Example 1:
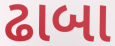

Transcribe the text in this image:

ઢાબા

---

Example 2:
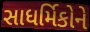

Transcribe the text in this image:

સાધર્મિકોને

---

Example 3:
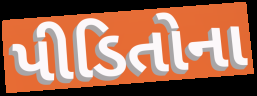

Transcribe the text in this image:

પીડિતોના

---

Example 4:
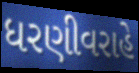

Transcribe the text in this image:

ધરણીવરાહે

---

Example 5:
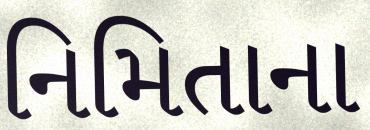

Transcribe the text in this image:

નિમિતાના